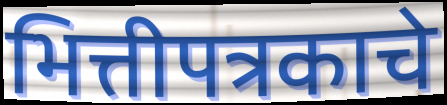
भित्तीपत्रकाचे